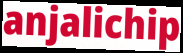
anjalichip